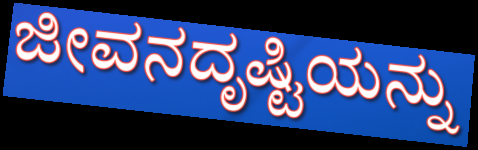
ಜೀವನದೃಷ್ಟಿಯನ್ನು